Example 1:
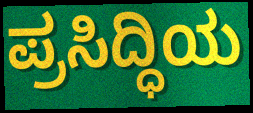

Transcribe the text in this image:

ಪ್ರಸಿದ್ಧಿಯ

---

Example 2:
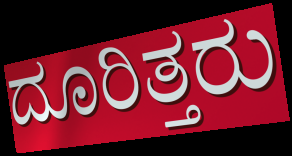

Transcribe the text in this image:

ದೂರಿತ್ತರು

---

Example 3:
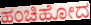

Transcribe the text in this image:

ಹಂಚಿಹೋದ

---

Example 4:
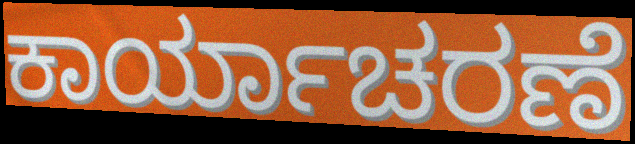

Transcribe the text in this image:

ಕಾರ್ಯಾಚರಣೆ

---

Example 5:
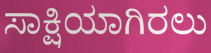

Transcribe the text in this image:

ಸಾಕ್ಷಿಯಾಗಿರಲು